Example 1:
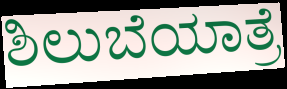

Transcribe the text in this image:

ಶಿಲುಬೆಯಾತ್ರೆ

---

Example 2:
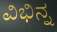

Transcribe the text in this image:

ವಿಭಿನ್ನ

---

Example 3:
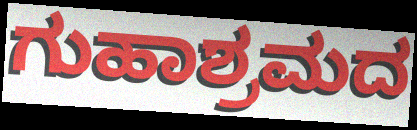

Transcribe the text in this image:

ಗುಹಾಶ್ರಮದ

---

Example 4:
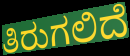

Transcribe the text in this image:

ತಿರುಗಲಿದೆ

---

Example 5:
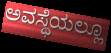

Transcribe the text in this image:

ಅವಸ್ಥೆಯಲ್ಲೂ